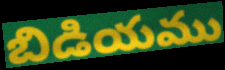
బిడియము